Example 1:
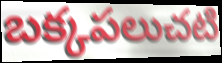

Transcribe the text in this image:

బక్కపలుచటి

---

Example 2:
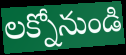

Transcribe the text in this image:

లక్నోనుండి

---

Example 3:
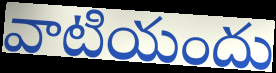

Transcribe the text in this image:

వాటియందు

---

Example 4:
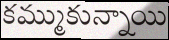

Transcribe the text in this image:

కమ్ముకున్నాయి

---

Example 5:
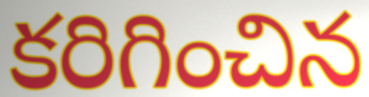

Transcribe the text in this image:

కరిగించిన